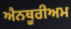
ਐਨਥੂਰੀਅਮ